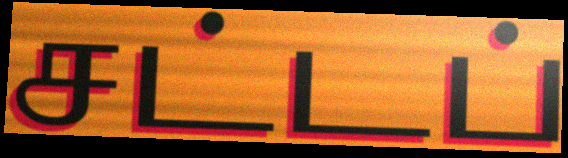
சட்டப்